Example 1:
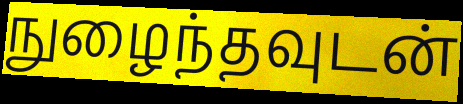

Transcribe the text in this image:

நுழைந்தவுடன்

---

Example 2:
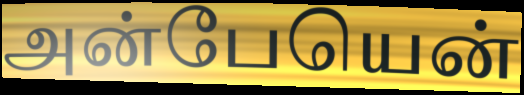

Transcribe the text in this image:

அன்பேயென்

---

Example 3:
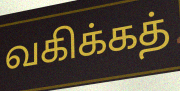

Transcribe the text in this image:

வகிக்கத்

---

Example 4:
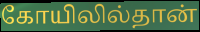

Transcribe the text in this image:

கோயிலில்தான்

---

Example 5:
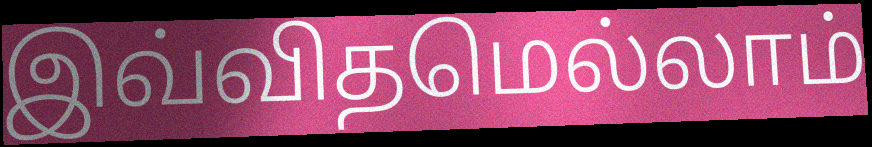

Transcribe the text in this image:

இவ்விதமெல்லாம்